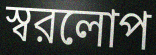
স্বরলোপ